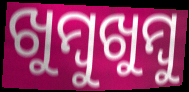
ଖୁମ୍ୱୁଖୁମ୍ବୁ